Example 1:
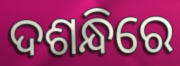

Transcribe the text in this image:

ଦଶନ୍ଧିରେ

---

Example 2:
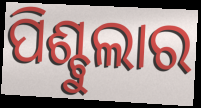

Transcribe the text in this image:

ପିଶ୍ଚୁଲାର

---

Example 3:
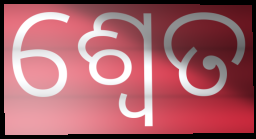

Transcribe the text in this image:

ଶ୍ଵେତ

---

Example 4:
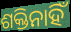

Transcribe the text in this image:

ଶକ୍ତିନାହିଁ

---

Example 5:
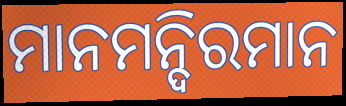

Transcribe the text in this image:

ମାନମନ୍ଦିରମାନ